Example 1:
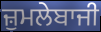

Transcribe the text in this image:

ਜ਼ੁਮਲੇਬਾਜੀ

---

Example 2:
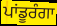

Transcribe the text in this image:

ਪਾਂਡੂਰੰਗਾ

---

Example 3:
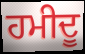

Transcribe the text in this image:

ਹਮੀਦੂ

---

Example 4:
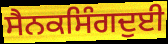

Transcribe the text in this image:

ਸੈਨਕਸਿੰਗਦੁਈ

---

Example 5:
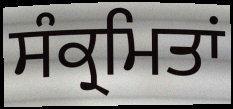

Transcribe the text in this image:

ਸੰਕ੍ਰਮਿਤਾਂ